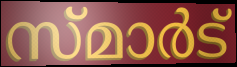
സ്മാർട്